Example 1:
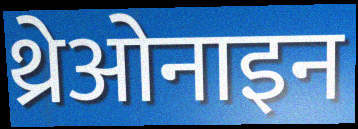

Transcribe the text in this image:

थ्रेओनाइन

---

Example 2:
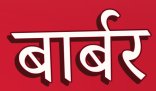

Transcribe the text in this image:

बार्बर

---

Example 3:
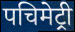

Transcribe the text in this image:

पचिमेट्री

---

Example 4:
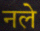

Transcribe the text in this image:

नले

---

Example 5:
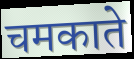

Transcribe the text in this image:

चमकाते